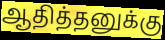
ஆதித்தனுக்கு